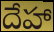
దేహా